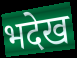
भदेख